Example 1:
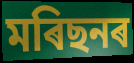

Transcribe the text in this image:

মৰিছনৰ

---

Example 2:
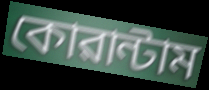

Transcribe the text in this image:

কোৱান্টাম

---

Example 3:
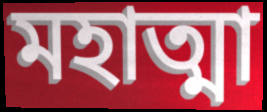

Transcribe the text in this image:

মহাত্মা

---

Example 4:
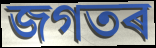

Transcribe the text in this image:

জগতৰ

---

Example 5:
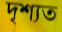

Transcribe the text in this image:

দৃশ্যত